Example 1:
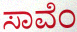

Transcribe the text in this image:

ಸಾವೆಂ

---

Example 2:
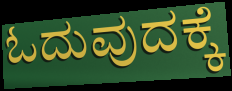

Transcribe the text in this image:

ಓದುವುದಕ್ಕೆ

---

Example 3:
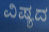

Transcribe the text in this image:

ವಿಷ್ಯದ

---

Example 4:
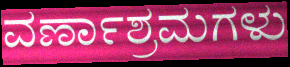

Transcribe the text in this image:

ವರ್ಣಾಶ್ರಮಗಳು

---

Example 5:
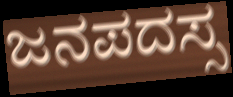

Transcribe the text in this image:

ಜನಪದಸ್ಸ